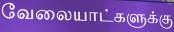
வேலையாட்களுக்கு